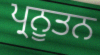
ਪ੍ਰਨੂਤਨ